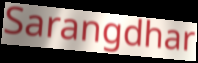
Sarangdhar